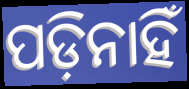
ପଡ଼ିନାହିଁ